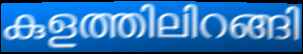
കുളത്തിലിറങ്ങി